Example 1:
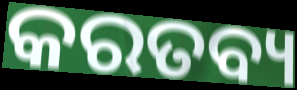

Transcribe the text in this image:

କରତବ୍ୟ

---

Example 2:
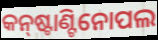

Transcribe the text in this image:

କନ୍‌ଷ୍ଟାଣ୍ଟିନୋପଲ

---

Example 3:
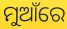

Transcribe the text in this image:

ମୁଆଁରେ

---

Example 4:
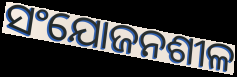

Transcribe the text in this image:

ସଂଯୋଜନଶୀଳ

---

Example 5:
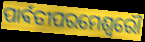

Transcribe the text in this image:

ପାର୍ବତୀପରମେଶ୍ଵରୌ